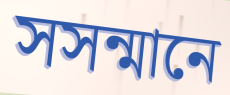
সসন্মানে